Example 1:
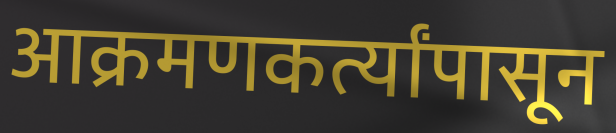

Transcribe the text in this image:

आक्रमणकर्त्यांपासून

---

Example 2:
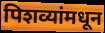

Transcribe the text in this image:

पिशव्यांमधून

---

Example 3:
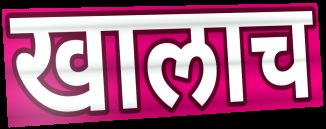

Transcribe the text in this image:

खालाच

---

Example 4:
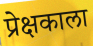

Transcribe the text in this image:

प्रेक्षकाला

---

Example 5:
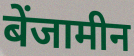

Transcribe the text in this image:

बेंजामीन